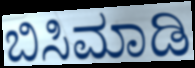
ಬಿಸಿಮಾಡಿ